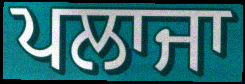
ਪਲਾਜਾ